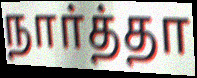
நார்த்தா